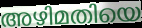
അഴിമതിയെ